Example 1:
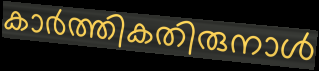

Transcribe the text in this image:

കാർത്തികതിരുനാൾ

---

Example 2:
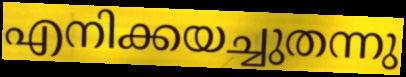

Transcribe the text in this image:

എനിക്കയച്ചുതന്നു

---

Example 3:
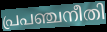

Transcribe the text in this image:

പ്രപഞ്ചനീതി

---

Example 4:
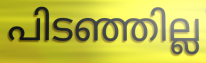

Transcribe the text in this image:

പിടഞ്ഞില്ല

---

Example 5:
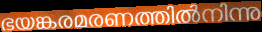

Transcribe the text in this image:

ഭയങ്കരമരണത്തിൽനിന്നു